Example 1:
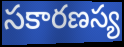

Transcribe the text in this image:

సకారణస్య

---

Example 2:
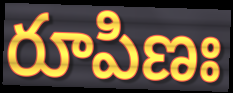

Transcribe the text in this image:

రూపిణః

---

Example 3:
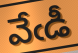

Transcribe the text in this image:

వేఁడీ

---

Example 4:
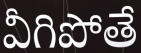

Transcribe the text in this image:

వీగిపోతే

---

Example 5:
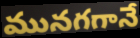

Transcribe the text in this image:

మునగగానే